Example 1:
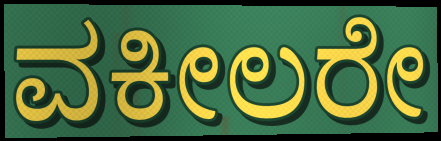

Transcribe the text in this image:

ವಕೀಲರೇ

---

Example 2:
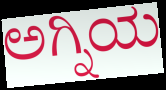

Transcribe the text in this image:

ಅಗ್ನಿಯ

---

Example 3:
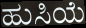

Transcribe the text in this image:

ಹುಸಿಯೆ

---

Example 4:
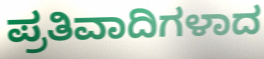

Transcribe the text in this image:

ಪ್ರತಿವಾದಿಗಳಾದ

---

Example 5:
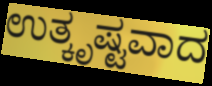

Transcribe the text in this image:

ಉತ್ಕೃಷ್ಟವಾದ